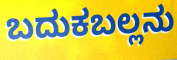
ಬದುಕಬಲ್ಲನು